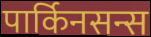
पार्किनसन्स